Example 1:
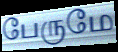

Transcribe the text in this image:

பேருமே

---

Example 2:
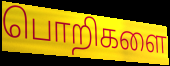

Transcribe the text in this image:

பொறிகளை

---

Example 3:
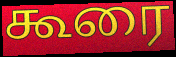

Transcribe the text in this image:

கூரை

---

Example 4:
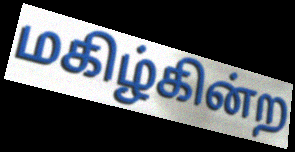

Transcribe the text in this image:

மகிழ்கின்ற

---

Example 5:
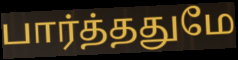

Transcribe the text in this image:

பார்த்ததுமே